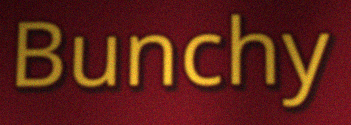
Bunchy